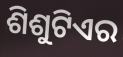
ଶିଶୁଟିଏର